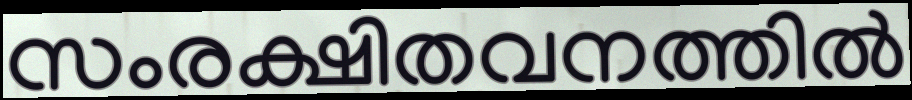
സംരക്ഷിതവനത്തിൽ